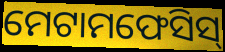
ମେଟାମଫେସିସ୍